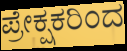
ಪ್ರೇಕ್ಷಕರಿಂದ